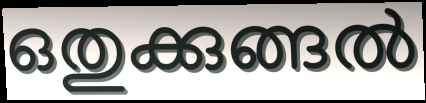
ഒതുക്കുങ്ങൽ